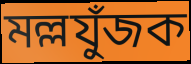
মল্লযুঁজক